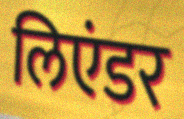
लिएंडर